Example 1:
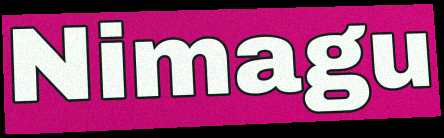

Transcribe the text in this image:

Nimagu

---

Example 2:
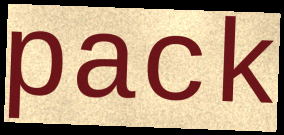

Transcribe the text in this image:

pack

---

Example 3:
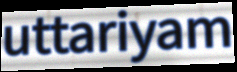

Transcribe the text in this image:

uttariyam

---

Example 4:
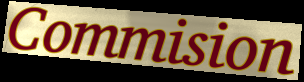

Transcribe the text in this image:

Commision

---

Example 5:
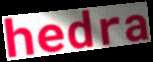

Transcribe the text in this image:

hedra